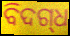
ବିଦଗ୍‍ଧ